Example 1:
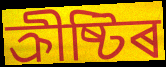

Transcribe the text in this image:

ক্ৰীষ্টিৰ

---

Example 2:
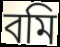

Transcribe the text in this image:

বমি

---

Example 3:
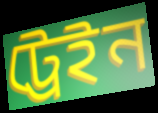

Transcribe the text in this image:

ট্ৰেইন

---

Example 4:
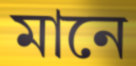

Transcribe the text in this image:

মানে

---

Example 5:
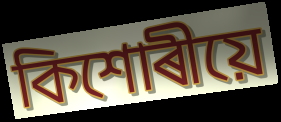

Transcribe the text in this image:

কিশোৰীয়ে